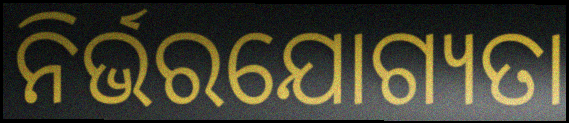
ନିର୍ଭରଯୋଗ୍ୟତା